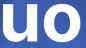
uo